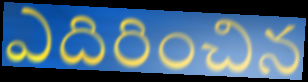
ఎదిరించిన